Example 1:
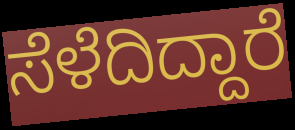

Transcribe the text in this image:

ಸೆಳೆದಿದ್ದಾರೆ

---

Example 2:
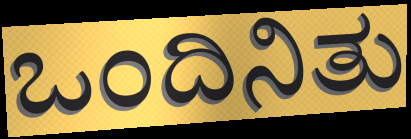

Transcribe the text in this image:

ಒಂದಿನಿತು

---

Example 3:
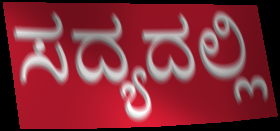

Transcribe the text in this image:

ಸದ್ಯದಲ್ಲಿ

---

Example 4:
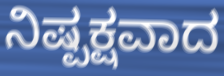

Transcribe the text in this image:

ನಿಷ್ಪಕ್ಷವಾದ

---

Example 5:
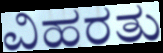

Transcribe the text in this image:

ವಿಹರತು